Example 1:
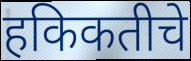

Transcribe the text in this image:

हकिकतीचे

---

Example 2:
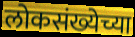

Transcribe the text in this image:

लोकसंख्‍येच्‍या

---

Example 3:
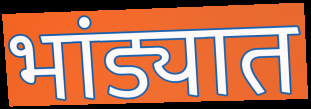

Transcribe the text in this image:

भांड्यात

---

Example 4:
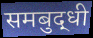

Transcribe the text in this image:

समबुद्धी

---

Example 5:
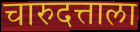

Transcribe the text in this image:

चारुदत्ताला